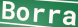
Borra